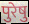
पुरेषु